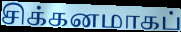
சிக்கனமாகப்